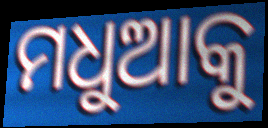
ମଧୁଆକୁ